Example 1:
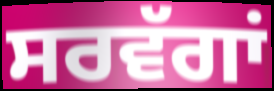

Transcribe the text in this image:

ਸਰਵੱਗਾਂ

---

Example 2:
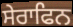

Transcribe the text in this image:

ਸੇਰਾਫਿਨ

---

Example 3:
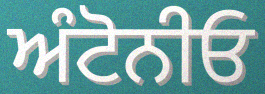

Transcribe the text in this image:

ਅੰਟੋਨੀਓ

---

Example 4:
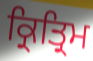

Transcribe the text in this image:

ਕ੍ਰਿਤ੍ਰਿਮ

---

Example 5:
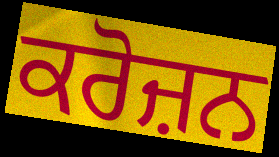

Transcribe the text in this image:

ਕਰੋਜ਼ਨ